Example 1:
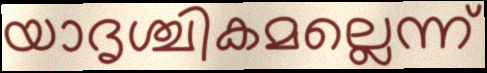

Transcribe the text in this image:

യാദൃശ്ചികമല്ലെന്ന്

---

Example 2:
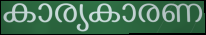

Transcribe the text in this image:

കാര്യകാരണ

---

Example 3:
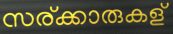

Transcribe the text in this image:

സര്ക്കാരുകള്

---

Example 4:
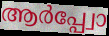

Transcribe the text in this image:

ആർപ്പ്വോ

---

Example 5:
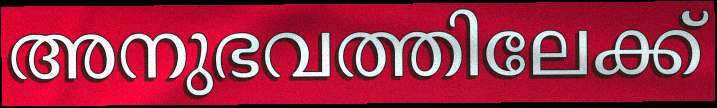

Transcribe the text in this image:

അനുഭവത്തിലേക്ക്